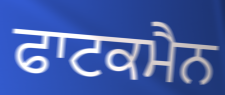
ਫਾਟਕਮੈਨ